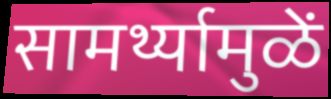
सामर्थ्यामुळें